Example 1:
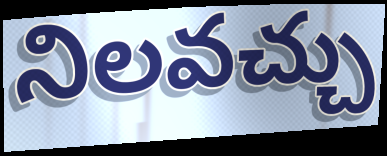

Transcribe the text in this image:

నిలవచ్చు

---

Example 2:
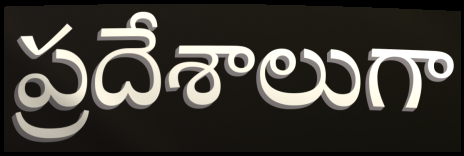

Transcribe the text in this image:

ప్రదేశాలుగా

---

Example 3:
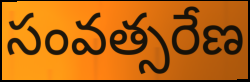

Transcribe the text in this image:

సంవత్సరేణ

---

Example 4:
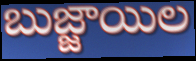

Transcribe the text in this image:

బుజ్జాయిల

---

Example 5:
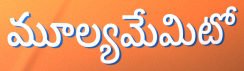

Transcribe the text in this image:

మూల్యమేమిటో